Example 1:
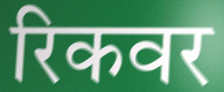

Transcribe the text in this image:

रिकवर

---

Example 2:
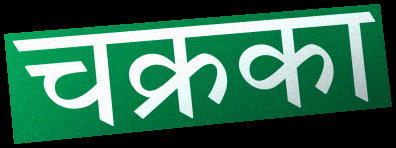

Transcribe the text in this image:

चक्रका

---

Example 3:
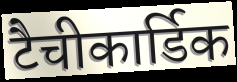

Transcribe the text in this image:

टैचीकार्डिक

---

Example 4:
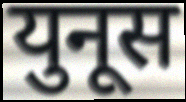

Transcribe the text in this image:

युनूस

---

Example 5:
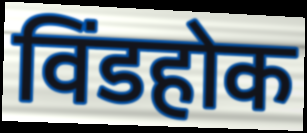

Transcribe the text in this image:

विंडहोक